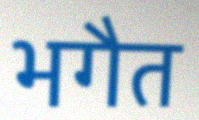
भगैत